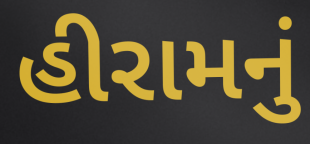
હીરામનું